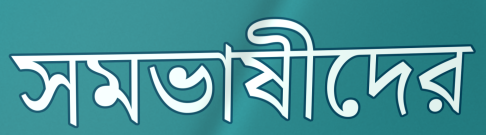
সমভাষীদের